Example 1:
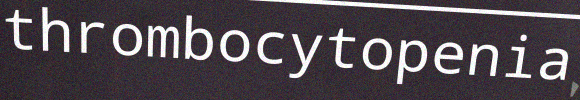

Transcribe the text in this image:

thrombocytopenia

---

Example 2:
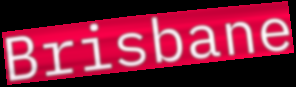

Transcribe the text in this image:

Brisbane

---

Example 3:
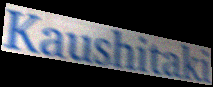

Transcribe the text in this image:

Kaushitaki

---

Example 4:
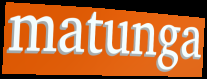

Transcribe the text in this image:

matunga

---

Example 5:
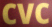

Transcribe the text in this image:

CVC